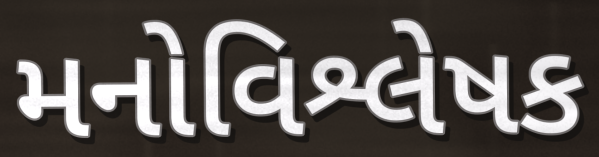
મનોવિશ્લેષક